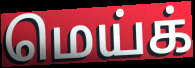
மெய்க்